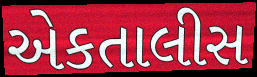
એકતાલીસ